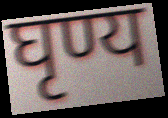
घृण्य